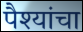
पैश्यांचा